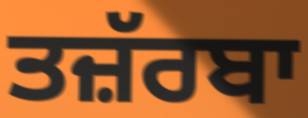
ਤਜ਼ੱਰਬਾ